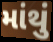
માંથું